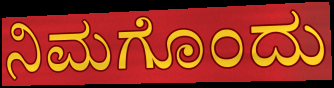
ನಿಮಗೊಂದು